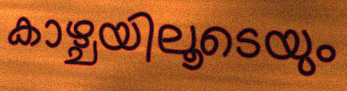
കാഴ്ചയിലൂടെയും